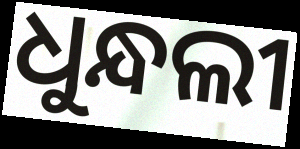
ଧୁନ୍ଧଲୀ